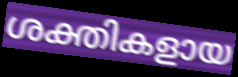
ശക്തികളായ